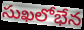
సుఖలోభేన